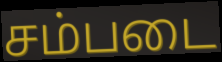
சம்படை